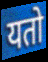
यतो